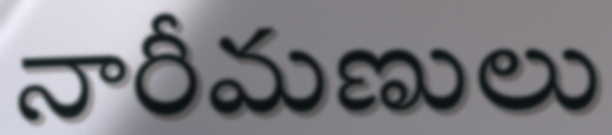
నారీమణులు